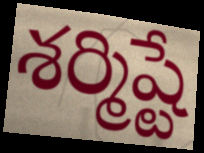
శర్మిష్టే